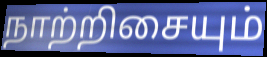
நாற்றிசையும்